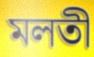
মলতী